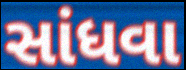
સાંધવા